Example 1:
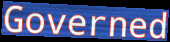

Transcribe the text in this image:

Governed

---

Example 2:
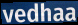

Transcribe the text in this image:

vedhaa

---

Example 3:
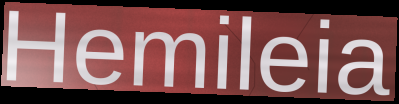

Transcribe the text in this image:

Hemileia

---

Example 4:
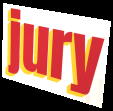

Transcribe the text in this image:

jury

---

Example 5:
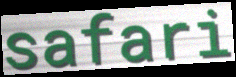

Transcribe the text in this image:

safari